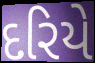
દરિયે